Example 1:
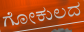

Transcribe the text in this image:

ಗೋಕುಲದ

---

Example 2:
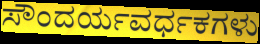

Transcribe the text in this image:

ಸೌಂದರ್ಯವರ್ಧಕಗಳು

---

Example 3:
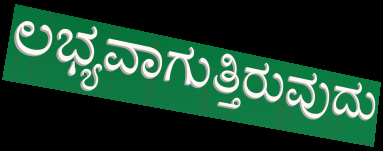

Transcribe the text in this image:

ಲಭ್ಯವಾಗುತ್ತಿರುವುದು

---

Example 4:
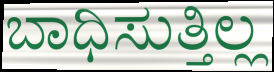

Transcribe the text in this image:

ಬಾಧಿಸುತ್ತಿಲ್ಲ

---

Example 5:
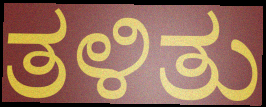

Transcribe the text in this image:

ತಳಿತು